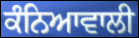
ਕੰਨਿਆਵਾਲੀ